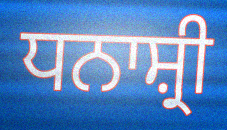
ਧਨਾਸ਼੍ਰੀ